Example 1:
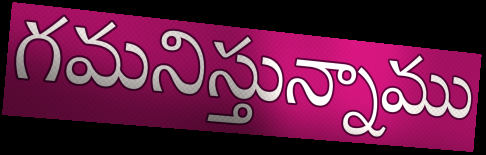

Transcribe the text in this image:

గమనిస్తున్నాము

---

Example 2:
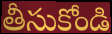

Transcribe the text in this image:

తీసుకోండి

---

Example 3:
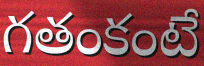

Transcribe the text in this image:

గతంకంటే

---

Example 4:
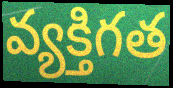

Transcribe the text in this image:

వ్యక్తిగత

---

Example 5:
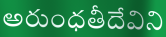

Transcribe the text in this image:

అరుంధతీదేవిని